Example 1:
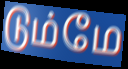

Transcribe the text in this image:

டும்மே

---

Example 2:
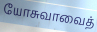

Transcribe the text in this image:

யோசுவாவைத்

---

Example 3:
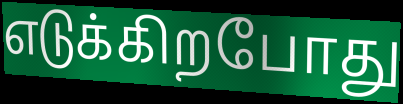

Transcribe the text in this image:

எடுக்கிறபோது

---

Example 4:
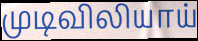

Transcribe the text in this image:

முடிவிலியாய்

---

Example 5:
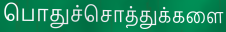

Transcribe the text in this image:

பொதுச்சொத்துக்களை